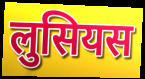
लुसियस